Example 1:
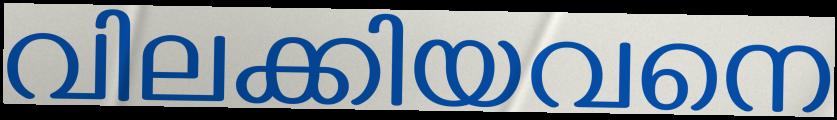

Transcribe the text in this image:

വിലക്കിയവനെ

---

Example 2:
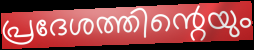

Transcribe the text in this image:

പ്രദേശത്തിന്റെയും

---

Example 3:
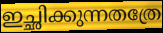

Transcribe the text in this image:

ഇച്ഛിക്കുന്നതത്രേ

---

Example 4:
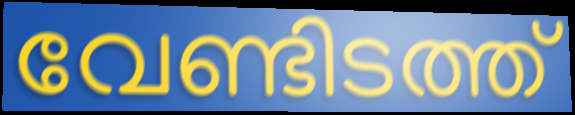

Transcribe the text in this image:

വേണ്ടിടത്ത്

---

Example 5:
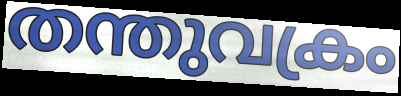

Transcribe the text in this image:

തന്തുവക്രം